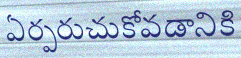
ఏర్పరుచుకోవడానికి